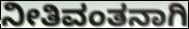
ನೀತಿವಂತನಾಗಿ